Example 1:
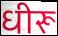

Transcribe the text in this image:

धीरू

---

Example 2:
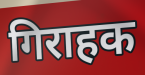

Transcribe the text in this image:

गिराहक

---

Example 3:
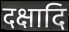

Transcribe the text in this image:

दक्षादि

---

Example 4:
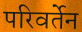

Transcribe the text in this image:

परिवर्तेन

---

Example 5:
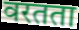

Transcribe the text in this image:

वरतता